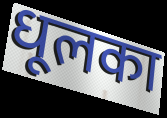
धूलका